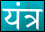
यंत्र